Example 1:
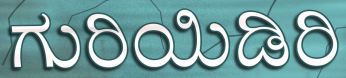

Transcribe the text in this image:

ಗುರಿಯಿಡಿರಿ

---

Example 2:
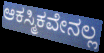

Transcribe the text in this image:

ಆಕಸ್ಮಿಕವೇನಲ್ಲ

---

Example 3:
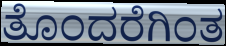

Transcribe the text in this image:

ತೊಂದರೆಗಿಂತ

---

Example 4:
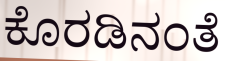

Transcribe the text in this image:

ಕೊರಡಿನಂತೆ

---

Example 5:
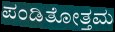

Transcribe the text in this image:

ಪಂಡಿತೋತ್ತಮ